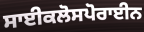
ਸਾਈਕਲੋਸਪੋਰਾਈਨ